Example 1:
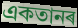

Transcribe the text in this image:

একতানৰ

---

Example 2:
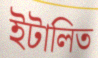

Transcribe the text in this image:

ইটালিত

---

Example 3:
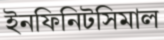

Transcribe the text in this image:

ইনফিনিটসিমাল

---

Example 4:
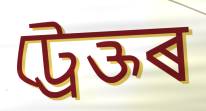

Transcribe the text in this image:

ট্ৰেক্তৰ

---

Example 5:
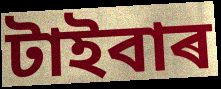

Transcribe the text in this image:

টাইবাৰ